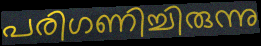
പരിഗണിച്ചിരുന്നു